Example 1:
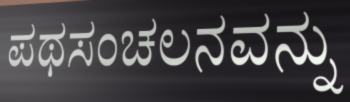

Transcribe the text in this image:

ಪಥಸಂಚಲನವನ್ನು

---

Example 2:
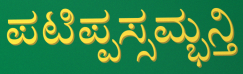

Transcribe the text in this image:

ಪಟಿಪ್ಪಸ್ಸಮ್ಭನ್ತಿ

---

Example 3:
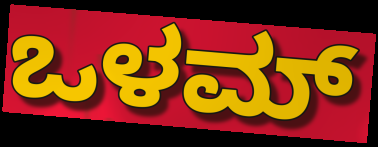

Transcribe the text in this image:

ಒಳಮ್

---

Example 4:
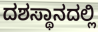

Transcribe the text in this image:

ದಶಸ್ಥಾನದಲ್ಲಿ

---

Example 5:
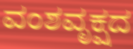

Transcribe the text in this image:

ವಂಶವೃಕ್ಷದ